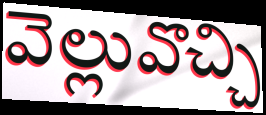
వెల్లువొచ్చి